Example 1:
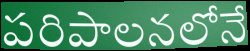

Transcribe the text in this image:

పరిపాలనలోనే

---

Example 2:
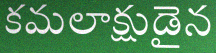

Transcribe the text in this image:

కమలాక్షుడైన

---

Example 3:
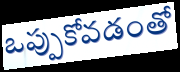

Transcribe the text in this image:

ఒప్పుకోవడంతో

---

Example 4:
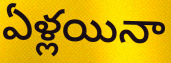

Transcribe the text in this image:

ఏళ్లయినా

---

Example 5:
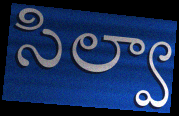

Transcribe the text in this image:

సిల్వా